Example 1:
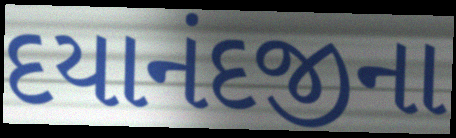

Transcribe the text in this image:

દયાનંદજીના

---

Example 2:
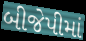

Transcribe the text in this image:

બીજેપીમાં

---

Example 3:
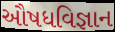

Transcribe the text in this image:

ઔષધવિજ્ઞાન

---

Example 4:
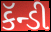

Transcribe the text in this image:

કૅન્ડી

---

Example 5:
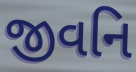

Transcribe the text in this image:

જીવનિ